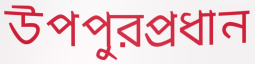
উপপুরপ্রধান